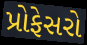
પ્રોફેસરો